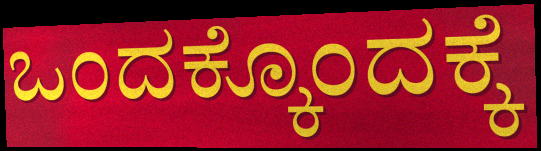
ಒಂದಕ್ಕೊಂದಕ್ಕೆ